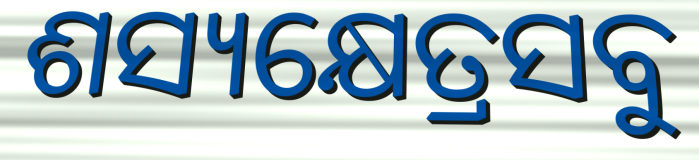
ଶସ୍ୟକ୍ଷେତ୍ରସବୁ